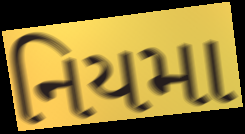
નિયમા